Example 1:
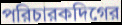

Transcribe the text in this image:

পরিচারকদিগের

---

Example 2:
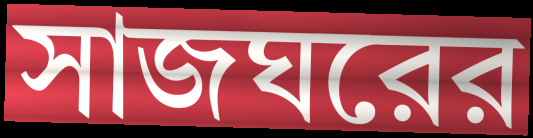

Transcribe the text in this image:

সাজঘরের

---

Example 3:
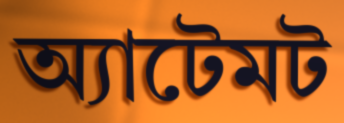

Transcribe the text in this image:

অ্যাটেমট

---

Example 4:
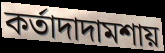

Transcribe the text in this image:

কর্তাদাদামশায়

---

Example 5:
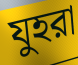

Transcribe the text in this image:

যুহরা